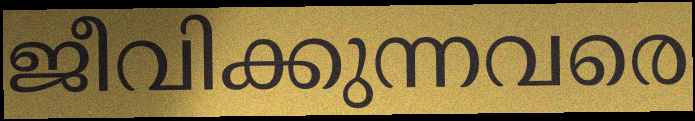
ജീവിക്കുന്നവരെ